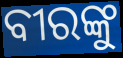
ବୀରଙ୍କୁ